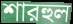
শারহুল